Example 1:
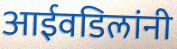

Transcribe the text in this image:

आईवडिलांनी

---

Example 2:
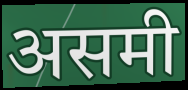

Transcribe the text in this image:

असमी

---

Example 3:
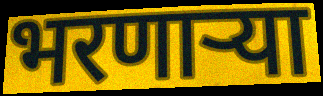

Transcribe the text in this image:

भरणाऱ्या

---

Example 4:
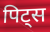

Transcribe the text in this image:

पिट्स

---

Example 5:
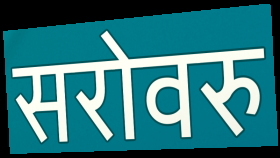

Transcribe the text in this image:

सरोवरु